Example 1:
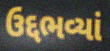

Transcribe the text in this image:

ઉદ્દભવ્યાં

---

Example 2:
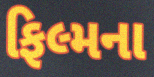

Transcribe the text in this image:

ફિલ્મના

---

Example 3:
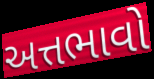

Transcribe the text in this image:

અત્તભાવો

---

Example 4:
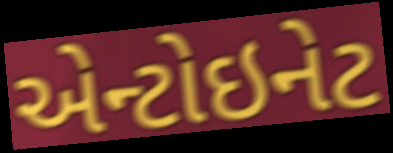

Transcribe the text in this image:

એન્ટોઇનેટ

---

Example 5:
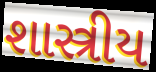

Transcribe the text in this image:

શાસ્ત્રીય